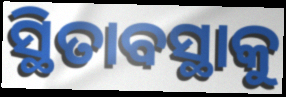
ସ୍ଥିତାବସ୍ଥାକୁ